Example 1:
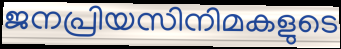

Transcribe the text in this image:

ജനപ്രിയസിനിമകളുടെ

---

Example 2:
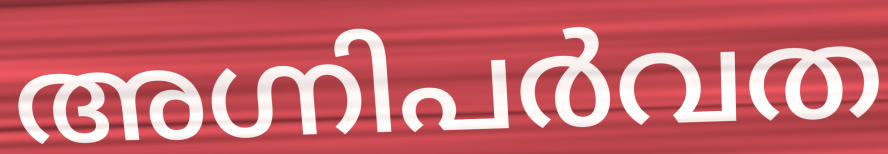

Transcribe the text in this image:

അഗ്നിപർവത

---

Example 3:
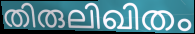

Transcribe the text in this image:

തിരുലിഖിതം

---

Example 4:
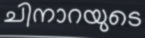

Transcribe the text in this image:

ചിനാറയുടെ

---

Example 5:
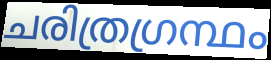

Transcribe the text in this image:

ചരിത്രഗ്രന്ഥം